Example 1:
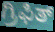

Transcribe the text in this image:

ಗ್ರಿಫಿತ್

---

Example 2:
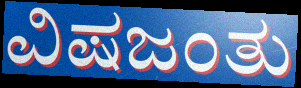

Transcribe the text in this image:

ವಿಷಜಂತು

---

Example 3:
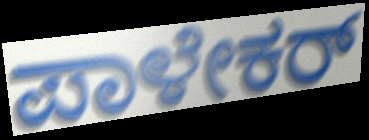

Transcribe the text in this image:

ಪಾಳೇಕರ್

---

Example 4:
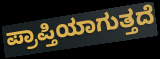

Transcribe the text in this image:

ಪ್ರಾಪ್ತಿಯಾಗುತ್ತದೆ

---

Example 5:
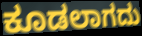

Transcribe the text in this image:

ಕೂಡಲಾಗದು